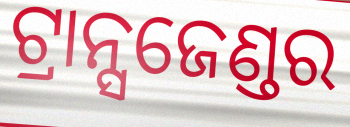
ଟ୍ରାନ୍ସଜେଣ୍ଡର